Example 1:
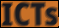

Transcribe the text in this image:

ICTs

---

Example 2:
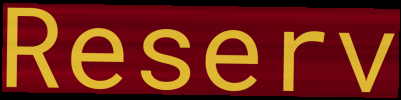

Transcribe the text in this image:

Reserv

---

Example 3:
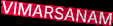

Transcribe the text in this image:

VIMARSANAM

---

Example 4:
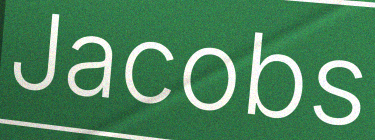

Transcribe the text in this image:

Jacobs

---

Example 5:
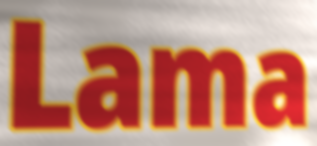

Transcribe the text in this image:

Lama